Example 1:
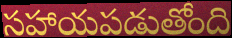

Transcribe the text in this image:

సహాయపడుతోంది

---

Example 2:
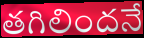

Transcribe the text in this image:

తగిలిందనే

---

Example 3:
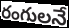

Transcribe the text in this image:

రంగులనే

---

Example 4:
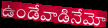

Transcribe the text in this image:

ఉండేవాడినేమో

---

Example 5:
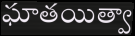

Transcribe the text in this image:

ఘాతయిత్వా